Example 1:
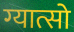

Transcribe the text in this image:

ग्यात्सो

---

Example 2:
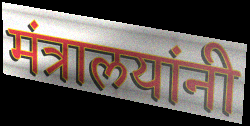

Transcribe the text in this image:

मंत्रालयांनी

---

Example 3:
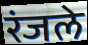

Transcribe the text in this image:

रंजले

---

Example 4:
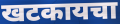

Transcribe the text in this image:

खटकायचा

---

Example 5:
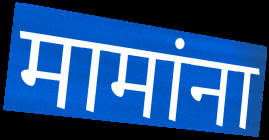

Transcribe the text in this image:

मामांना